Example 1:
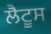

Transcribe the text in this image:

ਲੈਟੂਸ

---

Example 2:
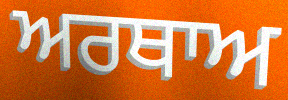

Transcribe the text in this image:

ਅਰਥਾਅ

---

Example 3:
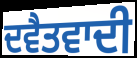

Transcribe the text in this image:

ਦਵੈਤਵਾਦੀ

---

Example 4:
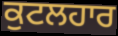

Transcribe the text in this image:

ਕੁਟਲਹਾਰ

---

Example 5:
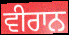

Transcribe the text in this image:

ਵੀਰਾਨ